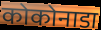
कोकोनाडा